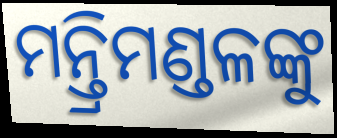
ମନ୍ତ୍ରିମଣ୍ଡଳଙ୍କୁ